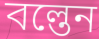
বল্তেন